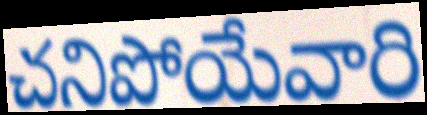
చనిపోయేవారి